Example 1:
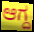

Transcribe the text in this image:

ಆಗ್ದ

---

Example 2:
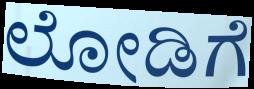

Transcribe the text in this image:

ಲೋಡಿಗೆ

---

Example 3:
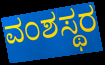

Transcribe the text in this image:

ವಂಶಸ್ಥರ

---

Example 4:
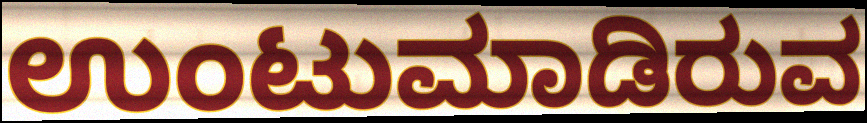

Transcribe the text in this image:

ಉಂಟುಮಾಡಿರುವ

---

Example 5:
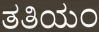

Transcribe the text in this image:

ತತಿಯಂ